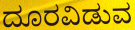
ದೂರವಿಡುವ